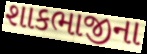
શાકભાજીના